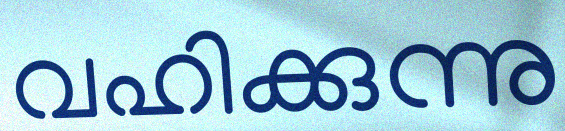
വഹിക്കുന്നു